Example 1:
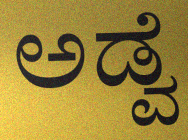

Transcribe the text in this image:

ಅಡ್ವೆ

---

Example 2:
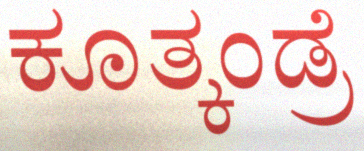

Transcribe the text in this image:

ಕೂತ್ಕಂಡ್ರೆ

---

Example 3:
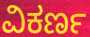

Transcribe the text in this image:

ವಿಕರ್ಣ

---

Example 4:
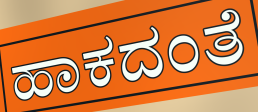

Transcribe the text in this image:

ಹಾಕದಂತೆ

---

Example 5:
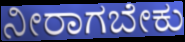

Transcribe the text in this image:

ನೀರಾಗಬೇಕು